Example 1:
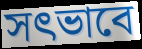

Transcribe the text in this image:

সৎভাবে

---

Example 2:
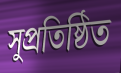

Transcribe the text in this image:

সুপ্রতিষ্ঠিত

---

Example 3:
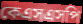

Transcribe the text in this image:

কেএসএসপি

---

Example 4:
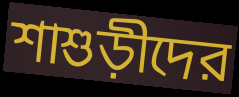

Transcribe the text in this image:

শাশুড়ীদের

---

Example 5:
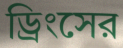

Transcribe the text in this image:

ড্রিংসের